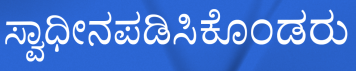
ಸ್ವಾಧೀನಪಡಿಸಿಕೊಂಡರು